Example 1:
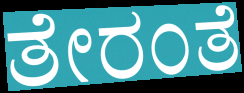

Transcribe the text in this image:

ತೇರಂತೆ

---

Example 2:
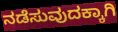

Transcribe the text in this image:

ನಡೆಸುವುದಕ್ಕಾಗಿ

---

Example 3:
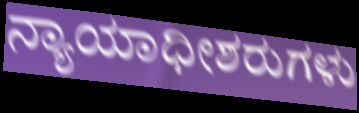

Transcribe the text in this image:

ನ್ಯಾಯಾಧೀಶರುಗಳು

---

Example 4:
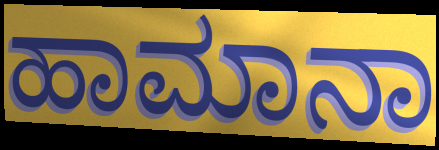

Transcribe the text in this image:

ಹಾಮಾನಾ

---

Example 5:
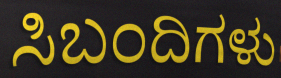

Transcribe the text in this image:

ಸಿಬಂದಿಗಳು